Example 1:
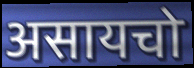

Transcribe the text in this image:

असायचो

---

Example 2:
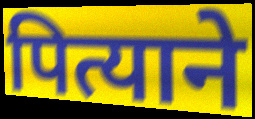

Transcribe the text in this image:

पित्याने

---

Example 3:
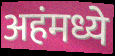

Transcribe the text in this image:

अहंमध्ये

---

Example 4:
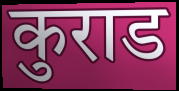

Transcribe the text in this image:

कुराड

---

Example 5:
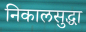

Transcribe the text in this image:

निकालसुद्धा